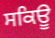
ਸਕਿਊ